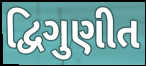
દ્વિગુણીત